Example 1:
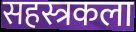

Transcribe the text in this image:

सहस्त्रकला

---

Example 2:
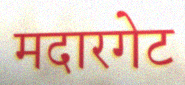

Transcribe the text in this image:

मदारगेट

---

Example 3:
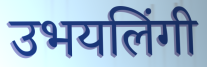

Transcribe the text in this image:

उभयलिंगी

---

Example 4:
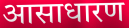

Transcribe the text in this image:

आसाधारण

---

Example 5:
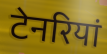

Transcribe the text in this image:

टेनरियां